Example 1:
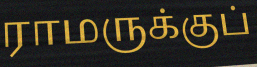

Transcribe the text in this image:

ராமருக்குப்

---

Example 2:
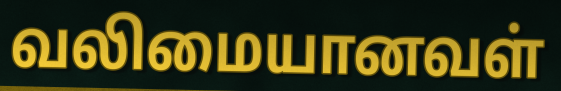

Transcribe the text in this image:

வலிமையானவள்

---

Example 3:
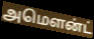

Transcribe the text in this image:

அமௌன்ட்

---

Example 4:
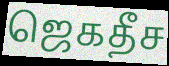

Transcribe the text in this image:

ஜெகதீச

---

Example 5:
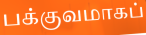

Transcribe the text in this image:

பக்குவமாகப்